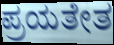
ಪ್ರಯತೇತ